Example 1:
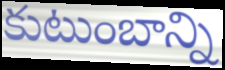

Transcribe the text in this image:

కుటుంబాన్ని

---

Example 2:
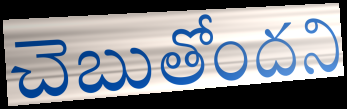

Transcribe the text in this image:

చెబుతోందని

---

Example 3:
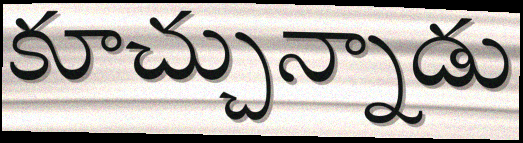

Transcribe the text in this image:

కూచ్చున్నాడు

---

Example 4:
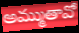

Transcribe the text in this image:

అమ్ముతావో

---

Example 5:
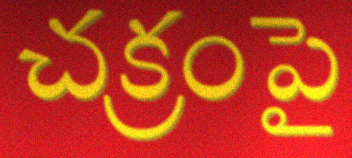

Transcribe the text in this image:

చక్రంపై